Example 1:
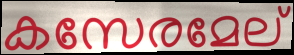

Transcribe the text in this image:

കസേരമേല്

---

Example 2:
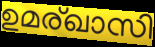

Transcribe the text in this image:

ഉമര്ഖാസി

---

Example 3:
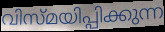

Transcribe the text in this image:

വിസ്മയിപ്പിക്കുന്ന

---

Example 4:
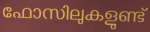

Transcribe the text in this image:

ഫോസിലുകളുണ്ട്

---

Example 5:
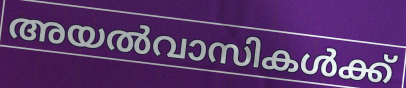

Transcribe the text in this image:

അയൽവാസികൾക്ക്